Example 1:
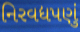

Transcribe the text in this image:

નિરવદ્યપણું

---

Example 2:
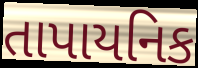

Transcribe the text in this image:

તાપાયનિક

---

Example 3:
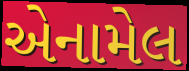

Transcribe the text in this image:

એનામેલ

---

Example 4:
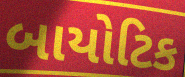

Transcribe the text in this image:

બાયોટિક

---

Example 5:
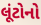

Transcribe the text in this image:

લૂંટોનો